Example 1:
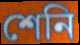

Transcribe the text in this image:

শেনি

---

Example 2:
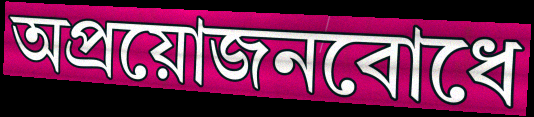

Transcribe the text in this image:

অপ্রয়োজনবোধে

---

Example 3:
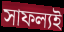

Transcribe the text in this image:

সাফল্যই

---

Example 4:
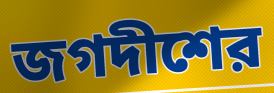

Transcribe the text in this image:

জগদীশের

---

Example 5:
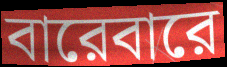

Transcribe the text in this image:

বারেবারে